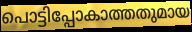
പൊട്ടിപ്പോകാത്തതുമായ